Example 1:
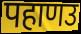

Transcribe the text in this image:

पहाणउ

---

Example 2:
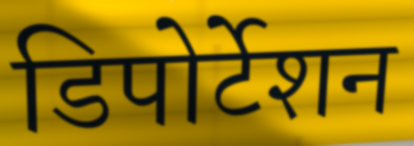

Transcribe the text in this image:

डिपोर्टेशन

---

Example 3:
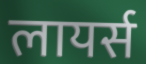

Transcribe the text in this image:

लायर्स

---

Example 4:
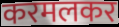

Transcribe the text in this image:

करमलकर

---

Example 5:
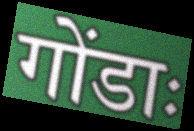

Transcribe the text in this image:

गोंडाः